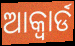
ଆକ୍ୱାର୍ଡ